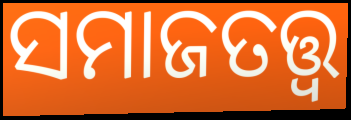
ସମାଜତତ୍ତ୍ବ